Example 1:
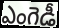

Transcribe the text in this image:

ఎంగెడీ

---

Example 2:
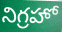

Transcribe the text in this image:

నిగ్రహో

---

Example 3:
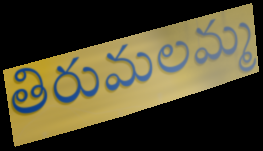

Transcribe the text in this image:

తిరుమలమ్మ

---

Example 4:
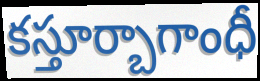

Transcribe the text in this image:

కస్తూర్బాగాంధీ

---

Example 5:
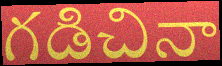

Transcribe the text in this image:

గడిచినా